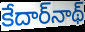
కేదార్‌నాథ్